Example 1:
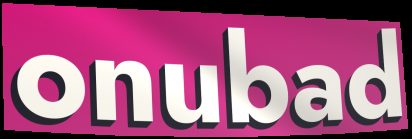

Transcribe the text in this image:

onubad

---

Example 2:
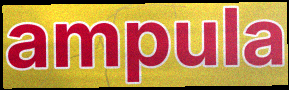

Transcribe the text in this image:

ampula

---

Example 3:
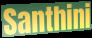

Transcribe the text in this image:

Santhini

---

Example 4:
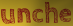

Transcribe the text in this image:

unche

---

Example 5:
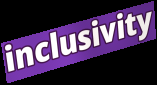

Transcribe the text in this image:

inclusivity